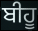
ਬੀਹੂ